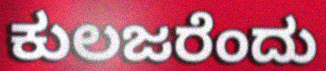
ಕುಲಜರೆಂದು